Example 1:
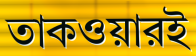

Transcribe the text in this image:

তাকওয়ারই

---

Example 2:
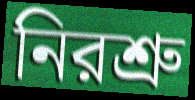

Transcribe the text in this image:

নিরশ্রু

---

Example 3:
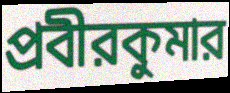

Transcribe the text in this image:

প্রবীরকুমার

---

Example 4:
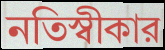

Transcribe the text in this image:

নতিস্বীকার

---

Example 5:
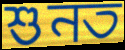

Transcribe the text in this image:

শুনত